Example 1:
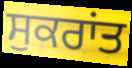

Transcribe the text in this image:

ਸੁਕਰਾਂਤ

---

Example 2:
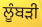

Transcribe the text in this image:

ਲੂੰਬੜੀ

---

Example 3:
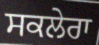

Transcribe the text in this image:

ਸਕਲੇਰਾ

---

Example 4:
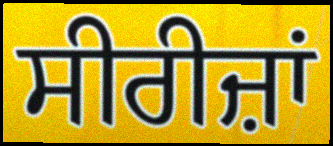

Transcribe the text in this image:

ਸੀਰੀਜ਼ਾਂ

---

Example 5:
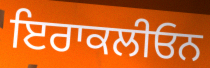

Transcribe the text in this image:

ਇਰਾਕਲੀਓਨ